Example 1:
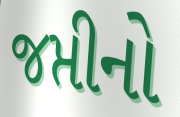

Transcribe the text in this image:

જપ્તીનો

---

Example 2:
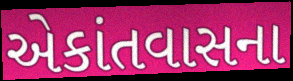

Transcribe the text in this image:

એકાંતવાસના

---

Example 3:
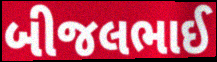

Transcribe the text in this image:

બીજલભાઈ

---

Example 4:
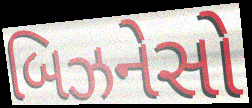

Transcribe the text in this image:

બિઝનેસો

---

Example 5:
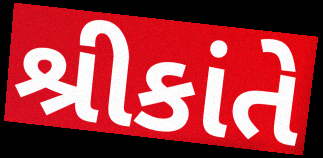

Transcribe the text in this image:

શ્રીકાંતે